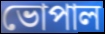
ভোপাল